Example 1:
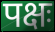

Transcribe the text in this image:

पक्षः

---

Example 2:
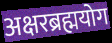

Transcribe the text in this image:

अक्षरब्रह्मयोग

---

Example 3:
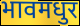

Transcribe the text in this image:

भावमधुर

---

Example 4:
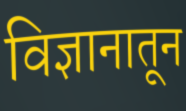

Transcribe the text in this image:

विज्ञानातून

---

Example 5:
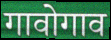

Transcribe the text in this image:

गावोगाव